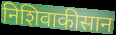
निशिवाकीसान